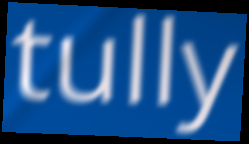
tully